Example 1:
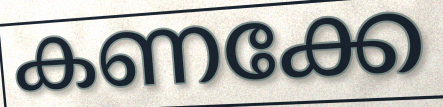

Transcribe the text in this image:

കണക്കേ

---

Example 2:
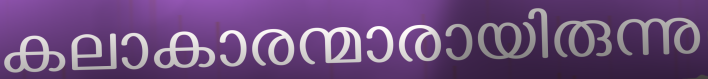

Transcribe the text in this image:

കലാകാരന്മാരായിരുന്നു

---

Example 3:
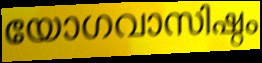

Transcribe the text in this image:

യോഗവാസിഷ്ഠം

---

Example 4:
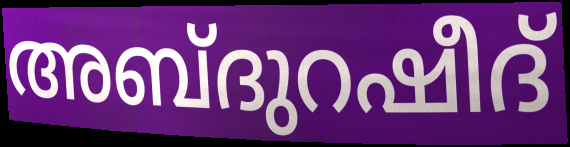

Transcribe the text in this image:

അബ്ദുറഷീദ്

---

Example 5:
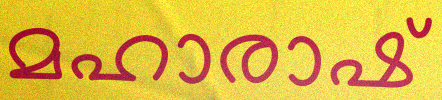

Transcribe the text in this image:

മഹാരാഷ്